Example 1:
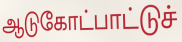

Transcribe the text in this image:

ஆடுகோட்பாட்டுச்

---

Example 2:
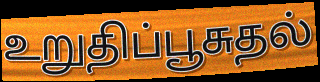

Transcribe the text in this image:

உறுதிப்பூசுதல்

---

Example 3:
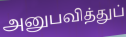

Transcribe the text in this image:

அனுபவித்துப்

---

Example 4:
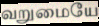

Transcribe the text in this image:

வறுமையே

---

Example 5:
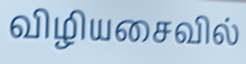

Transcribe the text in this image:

விழியசைவில்